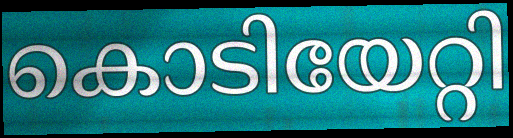
കൊടിയേറ്റി